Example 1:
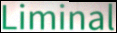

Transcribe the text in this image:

Liminal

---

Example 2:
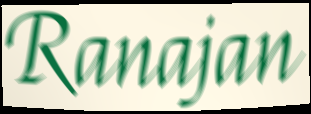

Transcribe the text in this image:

Ranajan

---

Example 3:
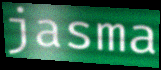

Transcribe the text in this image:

jasma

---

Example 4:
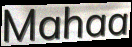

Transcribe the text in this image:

Mahaa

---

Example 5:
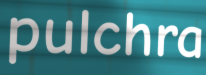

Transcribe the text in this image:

pulchra